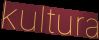
kultura